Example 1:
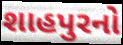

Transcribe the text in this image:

શાહપુરનો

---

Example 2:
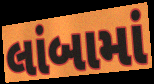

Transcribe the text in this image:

લાંબામાં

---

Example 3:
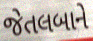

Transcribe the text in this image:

જેતલબાને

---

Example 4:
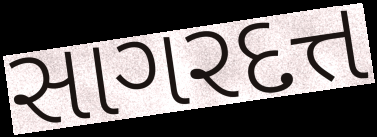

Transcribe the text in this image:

સાગરદત્ત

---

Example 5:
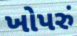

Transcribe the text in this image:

ખોપરું